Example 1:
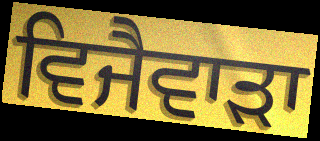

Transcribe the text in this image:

ਵਿਜੈਵਾੜਾ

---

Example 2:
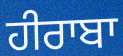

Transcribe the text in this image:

ਹੀਰਾਬਾ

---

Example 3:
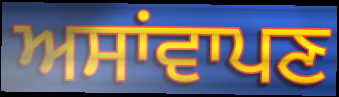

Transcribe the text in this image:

ਅਸਾਂਵਾਪਣ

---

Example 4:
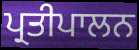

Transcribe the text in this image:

ਪ੍ਰਤੀਪਾਲਨ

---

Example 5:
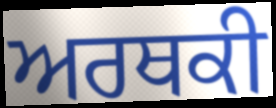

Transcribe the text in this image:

ਅਰਥਕੀ